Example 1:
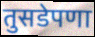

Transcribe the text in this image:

तुसडेपणा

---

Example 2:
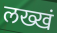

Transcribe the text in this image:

लख्खं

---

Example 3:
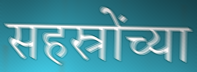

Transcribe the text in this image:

सहस्रोंच्या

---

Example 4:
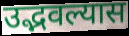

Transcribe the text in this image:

उद्भवल्यास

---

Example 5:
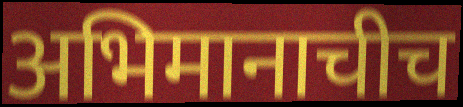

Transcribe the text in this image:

अभिमानाचीच